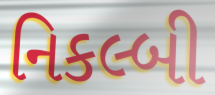
નિકલ્બી